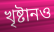
খৃষ্টানও